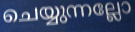
ചെയ്യുന്നല്ലോ